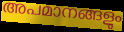
അപമാനങ്ങളും